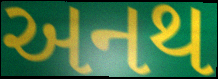
અનથ